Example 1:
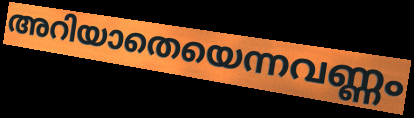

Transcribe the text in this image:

അറിയാതെയെന്നവണ്ണം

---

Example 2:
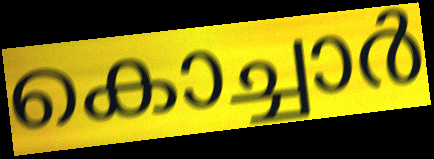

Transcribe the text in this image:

കൊച്ചാർ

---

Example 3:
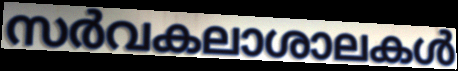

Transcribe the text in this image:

സർവകലാശാലകൾ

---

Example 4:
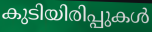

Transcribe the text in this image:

കുടിയിരിപ്പുകൾ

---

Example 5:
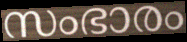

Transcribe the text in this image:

സംഭാരം